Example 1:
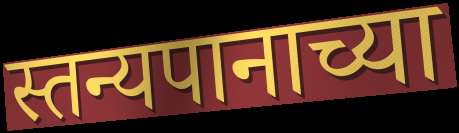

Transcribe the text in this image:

स्तन्यपानाच्या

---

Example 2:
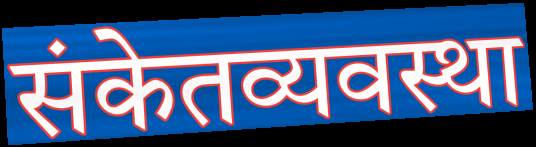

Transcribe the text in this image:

संकेतव्यवस्था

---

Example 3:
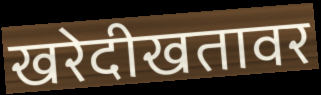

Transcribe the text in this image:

खरेदीखतावर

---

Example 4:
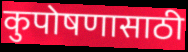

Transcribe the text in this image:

कुपोषणासाठी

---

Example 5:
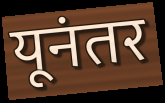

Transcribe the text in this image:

यूनंतर